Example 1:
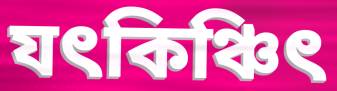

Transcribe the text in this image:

যৎকিঞ্চিৎ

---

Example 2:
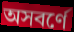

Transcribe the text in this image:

অসবর্ণে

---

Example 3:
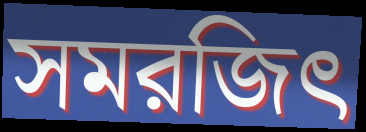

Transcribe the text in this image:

সমরজিৎ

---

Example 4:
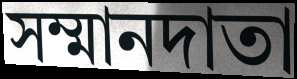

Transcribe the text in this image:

সম্মানদাতা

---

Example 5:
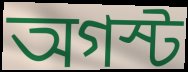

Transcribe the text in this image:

অগস্ট